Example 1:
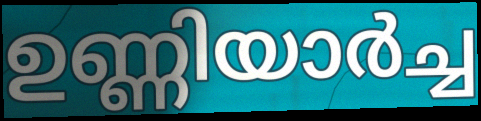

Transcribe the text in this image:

ഉണ്ണിയാർച്ച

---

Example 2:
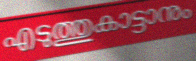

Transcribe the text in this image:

എടുത്തുകാട്ടാനും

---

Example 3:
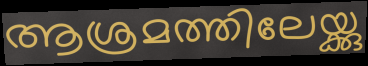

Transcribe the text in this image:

ആശ്രമത്തിലേയ്ക്കു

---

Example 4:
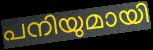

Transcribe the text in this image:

പനിയുമായി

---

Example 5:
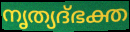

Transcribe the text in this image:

നൃത്യദ്ഭക്ത